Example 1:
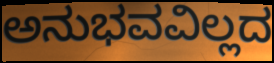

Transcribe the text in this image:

ಅನುಭವವಿಲ್ಲದ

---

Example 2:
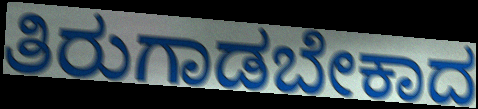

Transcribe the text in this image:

ತಿರುಗಾಡಬೇಕಾದ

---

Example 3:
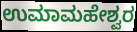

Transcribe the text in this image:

ಉಮಾಮಹೇಶ್ವರ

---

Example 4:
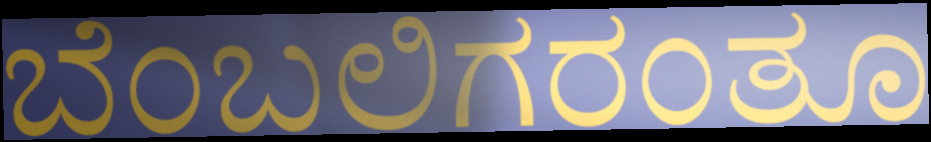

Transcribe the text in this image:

ಬೆಂಬಲಿಗರಂತೂ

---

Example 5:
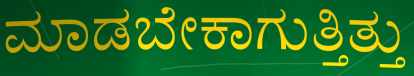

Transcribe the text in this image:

ಮಾಡಬೇಕಾಗುತ್ತಿತ್ತು